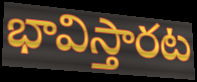
భావిస్తారట